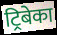
ट्रिबेका